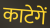
काटेगें